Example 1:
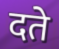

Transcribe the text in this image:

दते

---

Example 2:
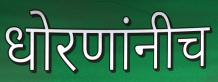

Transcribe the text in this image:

धोरणांनीच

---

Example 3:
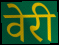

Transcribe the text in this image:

वेरी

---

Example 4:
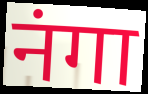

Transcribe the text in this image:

नंगा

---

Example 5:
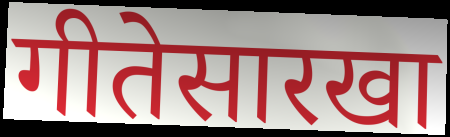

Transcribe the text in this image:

गीतेसारखा